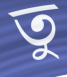
তু